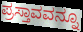
ಪ್ರಸ್ತಾವವನ್ನೂ